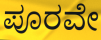
ಪೂರವೇ